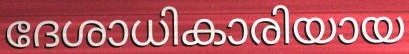
ദേശാധികാരിയായ